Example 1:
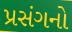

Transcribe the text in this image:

પ્રસંગનો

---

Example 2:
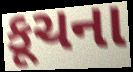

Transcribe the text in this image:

કૂચના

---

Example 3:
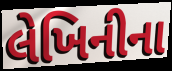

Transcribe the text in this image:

લેખિનીના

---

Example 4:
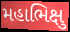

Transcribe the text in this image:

મહાભિક્ષુ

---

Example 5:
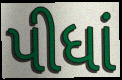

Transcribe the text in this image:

પીધાં